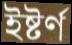
ইষ্টৰ্ণ